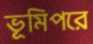
ভূমিপরে